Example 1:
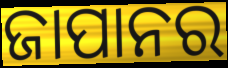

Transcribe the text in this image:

ଜାପାନର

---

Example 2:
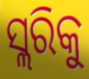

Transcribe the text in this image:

ସ୍ଲରିକୁ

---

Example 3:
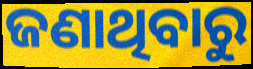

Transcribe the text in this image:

ଜଣାଥିବାରୁ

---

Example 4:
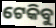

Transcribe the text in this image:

ଟେକିବୁ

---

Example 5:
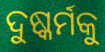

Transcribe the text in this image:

ଦୁଷ୍କର୍ମକୁ